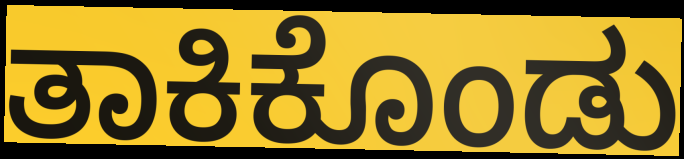
ತಾಕಿಕೊಂಡು